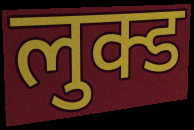
लुक्ड